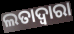
ଲତାଦ୍ୱାରା